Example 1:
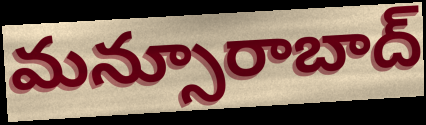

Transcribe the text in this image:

మన్సూరాబాద్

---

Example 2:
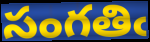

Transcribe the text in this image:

సంగతిఁ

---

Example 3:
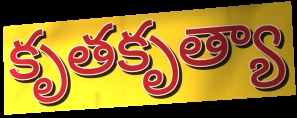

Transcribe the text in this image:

కృతకృత్యా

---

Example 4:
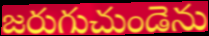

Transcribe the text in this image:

జరుగుచుండెను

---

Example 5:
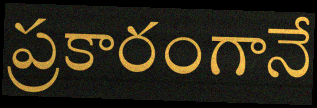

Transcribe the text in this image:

ప్రకారంగానే